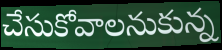
చేసుకోవాలనుకున్న